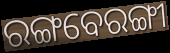
ରଙ୍ଗବେରଙ୍ଗୀ